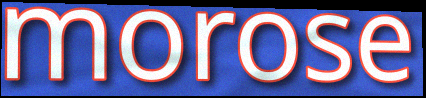
morose